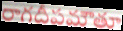
రాగదీపమౌతూ